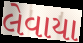
લેવાયા